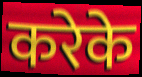
करेके